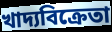
খাদ্যবিক্রেতা